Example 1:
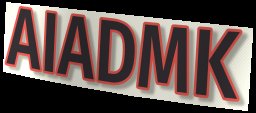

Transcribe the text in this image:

AIADMK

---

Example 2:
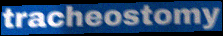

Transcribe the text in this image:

tracheostomy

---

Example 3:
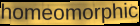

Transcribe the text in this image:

homeomorphic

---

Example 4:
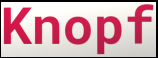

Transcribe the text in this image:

Knopf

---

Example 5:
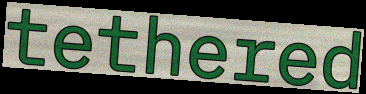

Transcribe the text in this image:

tethered